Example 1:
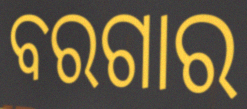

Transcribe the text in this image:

ବରଗାର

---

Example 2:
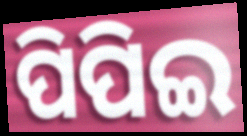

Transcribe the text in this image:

ପିପିଇ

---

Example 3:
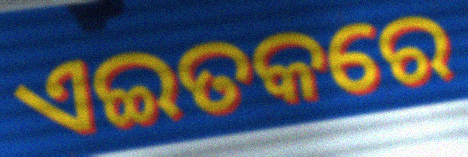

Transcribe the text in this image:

ଏଇତକରେ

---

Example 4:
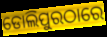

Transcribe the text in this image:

ଡୋଲିପୁରଠାରେ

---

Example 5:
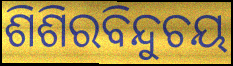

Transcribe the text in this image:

ଶିଶିରବିନ୍ଦୁଚୟ